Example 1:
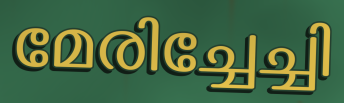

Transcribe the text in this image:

മേരിച്ചേച്ചി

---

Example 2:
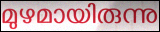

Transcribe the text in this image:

മുഴമായിരുന്നു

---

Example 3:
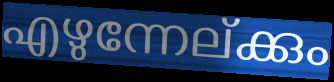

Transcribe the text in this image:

എഴുന്നേല്ക്കും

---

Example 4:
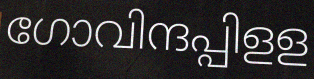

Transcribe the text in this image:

ഗോവിന്ദപ്പിളള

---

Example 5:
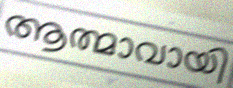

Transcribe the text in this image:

ആത്മാവായി